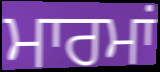
ਮਾਰਮਾਂ